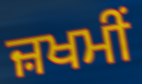
ਜ਼ਖਮੀਂ